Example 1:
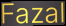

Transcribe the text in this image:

Fazal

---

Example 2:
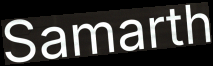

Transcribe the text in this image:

Samarth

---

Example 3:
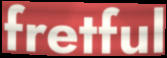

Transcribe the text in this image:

fretful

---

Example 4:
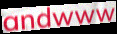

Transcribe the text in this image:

andwww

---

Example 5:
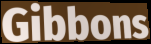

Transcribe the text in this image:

Gibbons